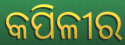
କପିଳୀର